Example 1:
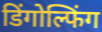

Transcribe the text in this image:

डिंगोल्फिंग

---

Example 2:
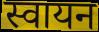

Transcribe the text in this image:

स्वायन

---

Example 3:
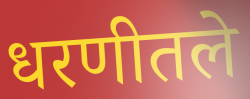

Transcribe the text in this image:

धरणीतले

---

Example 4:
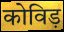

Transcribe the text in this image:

कोविड़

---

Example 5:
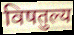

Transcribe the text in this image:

विषतुल्य